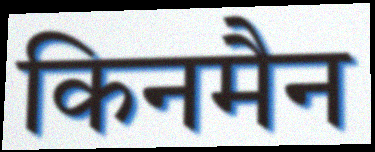
किनमैन